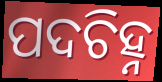
ପଦଚିହ୍ନ